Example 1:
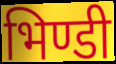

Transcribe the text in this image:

भिण्डी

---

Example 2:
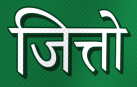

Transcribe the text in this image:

जित्तो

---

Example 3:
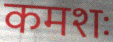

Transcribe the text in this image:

कमशः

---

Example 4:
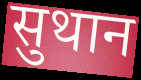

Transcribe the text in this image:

सुथान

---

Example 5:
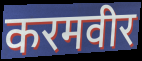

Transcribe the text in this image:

करमवीर